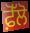
ਫ਼ੋੱਲੋ